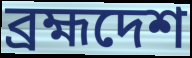
ব্রহ্মদেশ